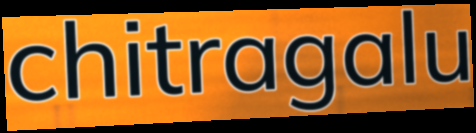
chitragalu